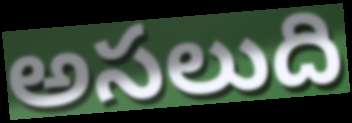
అసలుది